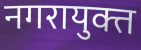
नगरायुक्त